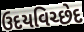
ઉદયવિચ્છેદ